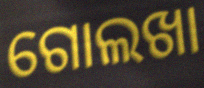
ଗୋଲଖା